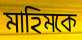
মাহিমকে